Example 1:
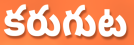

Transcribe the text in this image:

కరుగుట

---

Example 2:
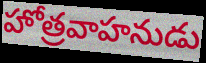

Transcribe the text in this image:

హోత్రవాహనుడు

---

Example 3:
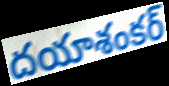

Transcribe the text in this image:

దయాశంకర్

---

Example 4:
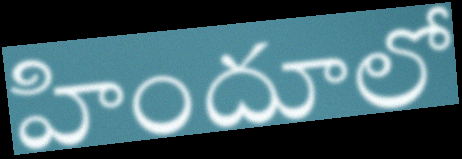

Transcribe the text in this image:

హిందూలో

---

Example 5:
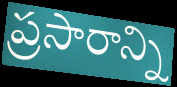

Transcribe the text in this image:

ప్రసారాన్ని